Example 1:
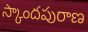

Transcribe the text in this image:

స్కాందపురాణ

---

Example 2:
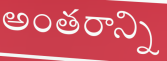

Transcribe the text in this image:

అంతరాన్ని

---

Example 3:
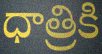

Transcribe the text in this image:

ధాత్రికి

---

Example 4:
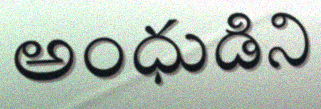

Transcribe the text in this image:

అంధుడిని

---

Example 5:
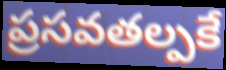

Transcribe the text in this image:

ప్రసవతల్పకే